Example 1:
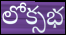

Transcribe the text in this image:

లోక్సభ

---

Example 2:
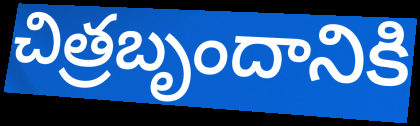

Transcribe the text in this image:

చిత్రబృందానికి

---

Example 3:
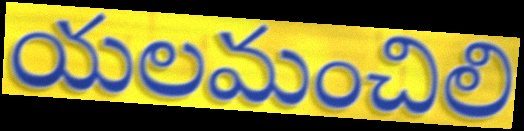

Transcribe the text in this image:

యలమంచిలి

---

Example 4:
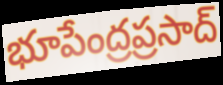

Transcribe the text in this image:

భూపేంద్రప్రసాద్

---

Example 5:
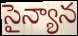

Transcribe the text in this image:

సైన్యాన